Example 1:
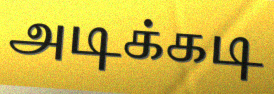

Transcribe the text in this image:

அடிக்கடி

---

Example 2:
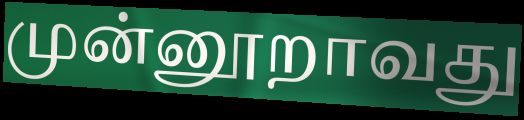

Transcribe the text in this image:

முன்னூறாவது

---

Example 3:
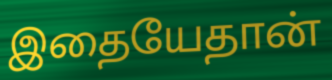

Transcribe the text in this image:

இதையேதான்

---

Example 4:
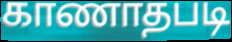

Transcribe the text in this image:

காணாதபடி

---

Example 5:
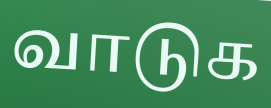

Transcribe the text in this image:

வாடுக